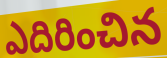
ఎదిరించిన